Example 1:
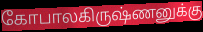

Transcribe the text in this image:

கோபாலகிருஷ்ணனுக்கு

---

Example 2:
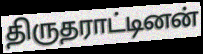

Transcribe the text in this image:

திருதராட்டினன்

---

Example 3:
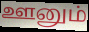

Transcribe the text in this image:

ஊனும்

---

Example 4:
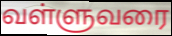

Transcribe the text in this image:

வள்ளுவரை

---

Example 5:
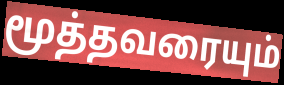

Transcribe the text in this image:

மூத்தவரையும்